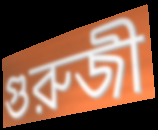
গুরুজী